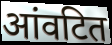
आंवटित